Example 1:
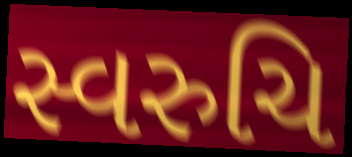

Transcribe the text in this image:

સ્વરુચિ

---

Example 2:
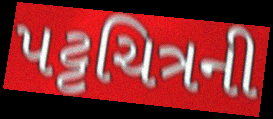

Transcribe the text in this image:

પટ્ટચિત્રની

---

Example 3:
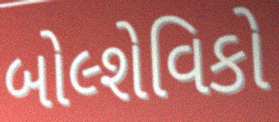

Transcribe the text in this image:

બોલ્શેવિકો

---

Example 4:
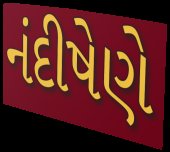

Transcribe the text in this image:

નંદીષેણે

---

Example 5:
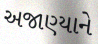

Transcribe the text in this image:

અજાણ્યાને